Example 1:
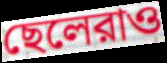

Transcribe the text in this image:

ছেলেরাও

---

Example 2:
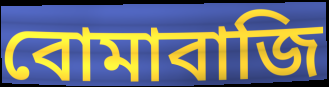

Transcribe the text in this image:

বোমাবাজি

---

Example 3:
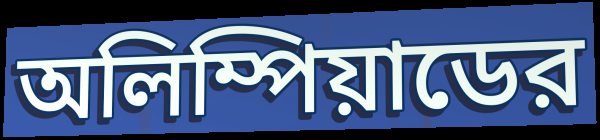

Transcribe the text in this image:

অলিম্পিয়াডের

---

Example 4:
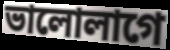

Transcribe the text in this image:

ভালোলাগে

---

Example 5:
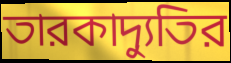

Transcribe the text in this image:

তারকাদ্যুতির